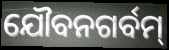
ଯୌବନଗର୍ବମ୍